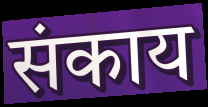
संकाय